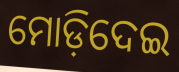
ମୋଡ଼ିଦେଇ